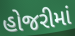
હોજરીમાં